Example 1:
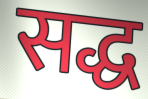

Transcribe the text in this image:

सद्ध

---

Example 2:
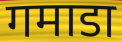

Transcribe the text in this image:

गमाडा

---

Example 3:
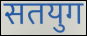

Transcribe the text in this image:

सतयुग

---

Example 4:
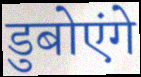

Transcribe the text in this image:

डुबोएंगे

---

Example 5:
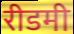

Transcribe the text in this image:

रीडमी